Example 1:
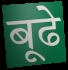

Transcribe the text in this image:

बूढे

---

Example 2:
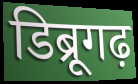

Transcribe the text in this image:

डिब्रूगढ़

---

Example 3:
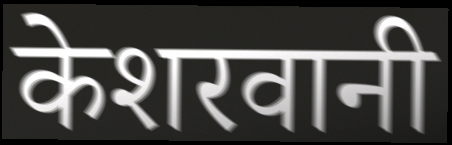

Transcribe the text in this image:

केशरवानी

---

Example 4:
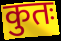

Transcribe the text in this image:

कुतः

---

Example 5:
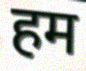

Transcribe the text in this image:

हम